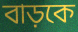
বাড়কে